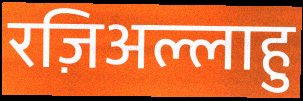
रज़िअल्लाहु